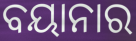
ବୟାନାର